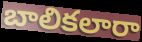
బాలికలారా